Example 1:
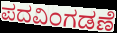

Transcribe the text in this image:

ಪದವಿಂಗಡಣೆ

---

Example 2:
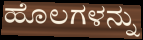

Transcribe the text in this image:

ಹೊಲಗಳನ್ನು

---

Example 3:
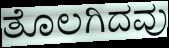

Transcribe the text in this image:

ತೊಲಗಿದವು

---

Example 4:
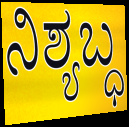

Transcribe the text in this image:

ನಿಶ್ಯಬ್ಧ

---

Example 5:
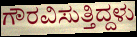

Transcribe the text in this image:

ಗೌರವಿಸುತ್ತಿದ್ದಳು